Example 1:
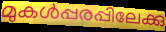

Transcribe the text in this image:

മുകൾപ്പരപ്പിലേക്കു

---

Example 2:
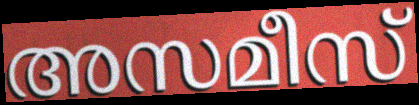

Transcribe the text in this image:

അസമീസ്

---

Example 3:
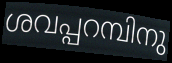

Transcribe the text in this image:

ശവപ്പറമ്പിനു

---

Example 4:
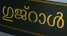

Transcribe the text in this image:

ഗുജ്റാൾ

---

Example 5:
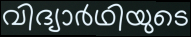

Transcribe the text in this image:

വിദ്യാർഥിയുടെ